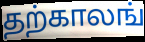
தற்காலங்